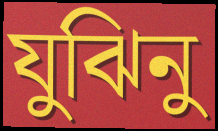
যুঝিনু